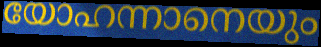
യോഹന്നാനെയും